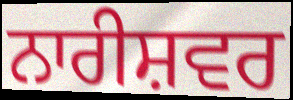
ਨਾਰੀਸ਼ਵਰ